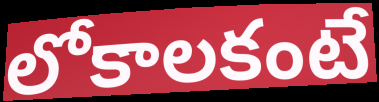
లోకాలకంటే